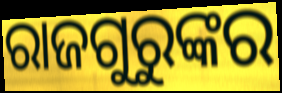
ରାଜଗୁରୁଙ୍କର